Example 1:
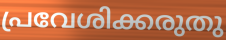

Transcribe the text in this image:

പ്രവേശിക്കരുതു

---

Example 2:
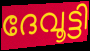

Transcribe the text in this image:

ദേവൂട്ടി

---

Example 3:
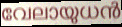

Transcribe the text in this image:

വേലായുധൻ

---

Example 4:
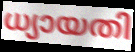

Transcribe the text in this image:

ധ്യായതി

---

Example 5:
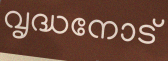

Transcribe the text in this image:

വൃദ്ധനോട്